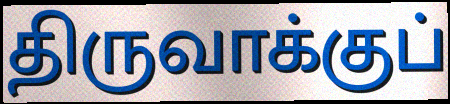
திருவாக்குப்